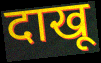
दाखू